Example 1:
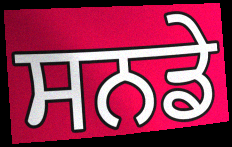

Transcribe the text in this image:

ਸਨਡੇ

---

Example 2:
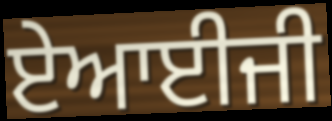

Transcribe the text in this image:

ਏਆਈਜੀ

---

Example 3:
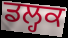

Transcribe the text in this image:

ਡਲ੍ਹਕ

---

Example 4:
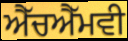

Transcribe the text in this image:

ਐੱਚਐੱਮਵੀ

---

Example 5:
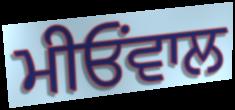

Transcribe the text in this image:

ਮੀਓਂਵਾਲ